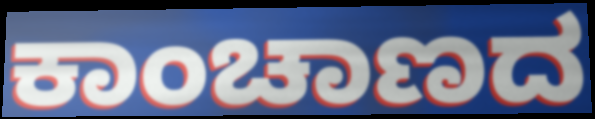
ಕಾಂಚಾಣದ